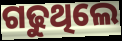
ଗଢୁଥିଲେ